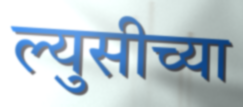
ल्युसीच्या